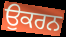
ਉਕਰਨ